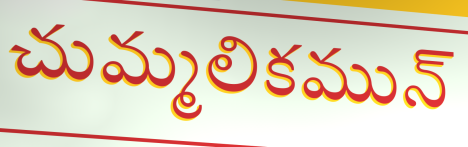
చుమ్మలికమున్